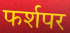
फर्शपर